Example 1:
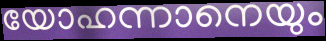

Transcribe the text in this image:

യോഹന്നാനെയും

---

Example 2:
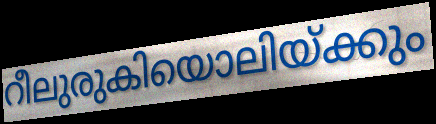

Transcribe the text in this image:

റീലുരുകിയൊലിയ്ക്കും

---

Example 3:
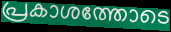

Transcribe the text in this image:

പ്രകാശത്തോടെ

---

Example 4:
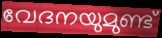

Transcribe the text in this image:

വേദനയുമുണ്ട്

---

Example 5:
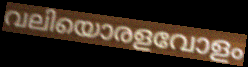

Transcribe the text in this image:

വലിയൊരളവോളം